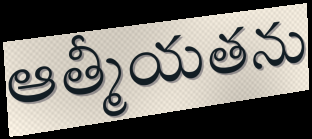
ఆత్మీయతను